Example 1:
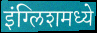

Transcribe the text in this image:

इंग्लिशमध्ये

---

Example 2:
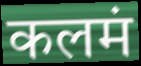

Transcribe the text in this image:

कलमं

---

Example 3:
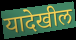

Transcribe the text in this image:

यादेखील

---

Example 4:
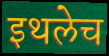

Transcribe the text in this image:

इथलेच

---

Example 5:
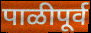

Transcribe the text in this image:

पाळीपूर्व